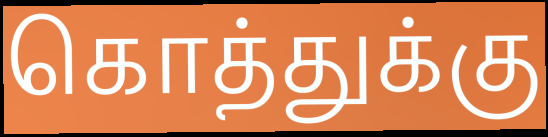
கொத்துக்கு